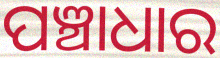
ପଞ୍ଚାଧାର